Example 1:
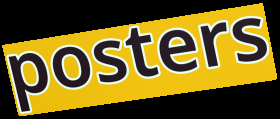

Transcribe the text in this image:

posters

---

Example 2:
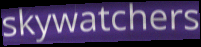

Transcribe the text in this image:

skywatchers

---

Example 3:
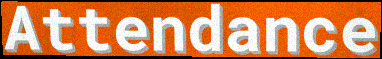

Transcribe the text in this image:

Attendance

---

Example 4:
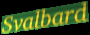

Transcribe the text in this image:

Svalbard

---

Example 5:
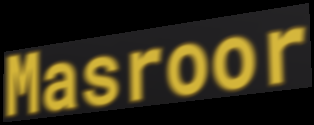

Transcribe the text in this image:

Masroor